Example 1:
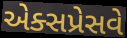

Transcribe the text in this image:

એક્સપ્રેસવે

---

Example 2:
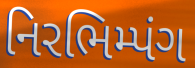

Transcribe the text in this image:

નિરભિમ્પંગ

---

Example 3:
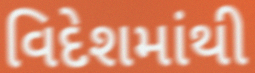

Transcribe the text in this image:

વિદેશમાંથી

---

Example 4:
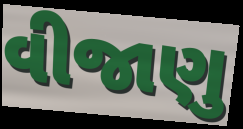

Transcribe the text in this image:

વીજાણુ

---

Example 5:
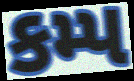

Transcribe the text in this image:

કમ્પ